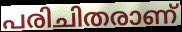
പരിചിതരാണ്